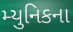
મ્યુનિકના